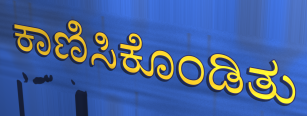
ಕಾಣಿಸಿಕೊಂಡಿತು